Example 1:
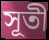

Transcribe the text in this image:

সূতী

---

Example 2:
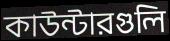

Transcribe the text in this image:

কাউন্টারগুলি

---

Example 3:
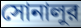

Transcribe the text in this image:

সোনালুর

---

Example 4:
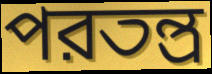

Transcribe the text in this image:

পরতন্ত্র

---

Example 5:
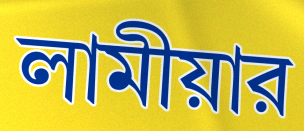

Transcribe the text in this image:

লামীয়ার